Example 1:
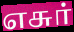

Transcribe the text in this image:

எசுர்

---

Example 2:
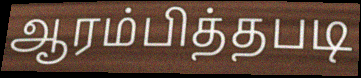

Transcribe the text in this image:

ஆரம்பித்தபடி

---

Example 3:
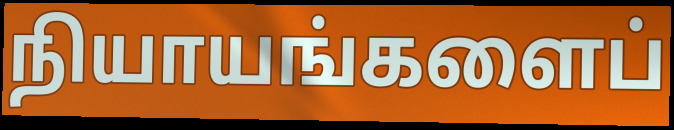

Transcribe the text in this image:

நியாயங்களைப்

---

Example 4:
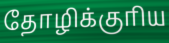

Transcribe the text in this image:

தோழிக்குரிய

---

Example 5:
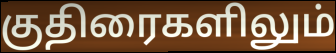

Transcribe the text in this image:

குதிரைகளிலும்